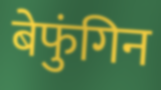
बेफुंगिन